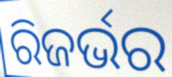
ରିଜର୍ଭର